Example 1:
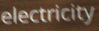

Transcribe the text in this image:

electricity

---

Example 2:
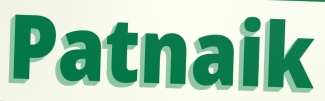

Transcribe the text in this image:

Patnaik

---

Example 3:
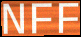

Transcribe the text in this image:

NFF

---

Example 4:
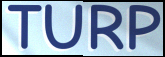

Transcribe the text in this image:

TURP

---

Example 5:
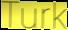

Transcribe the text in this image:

Turk